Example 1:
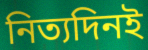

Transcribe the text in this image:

নিত্যদিনই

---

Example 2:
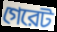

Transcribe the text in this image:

গেরেট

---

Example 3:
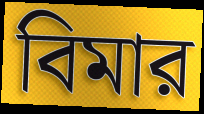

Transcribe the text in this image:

বিমার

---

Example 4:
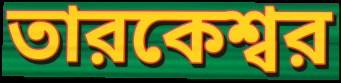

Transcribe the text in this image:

তারকেশ্বর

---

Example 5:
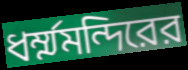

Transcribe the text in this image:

ধর্ম্মমন্দিরের